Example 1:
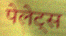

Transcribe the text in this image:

पेलेट्स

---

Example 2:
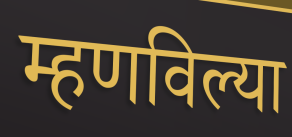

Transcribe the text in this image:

म्हणविल्या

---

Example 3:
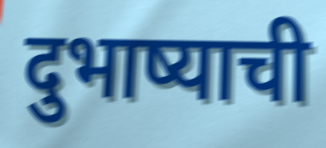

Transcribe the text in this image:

दुभाष्याची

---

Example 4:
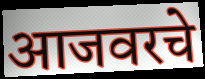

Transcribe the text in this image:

आजवरचे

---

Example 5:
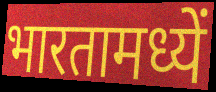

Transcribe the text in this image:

भारतामध्यें